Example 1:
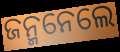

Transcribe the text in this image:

ଜନ୍ମନେଲେ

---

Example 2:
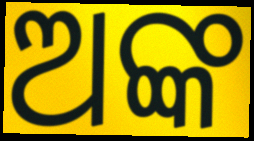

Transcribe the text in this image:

ଅଙ୍କ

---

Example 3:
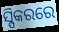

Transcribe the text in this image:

ସ୍ପିକରରେ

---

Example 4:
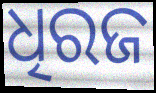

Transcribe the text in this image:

ଧିରଜ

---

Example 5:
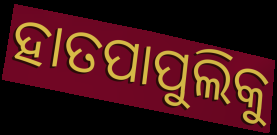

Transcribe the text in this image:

ହାତପାପୁଲିକୁ